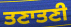
ਤਣਾਤਣੀ